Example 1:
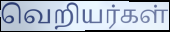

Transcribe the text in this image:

வெறியர்கள்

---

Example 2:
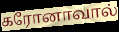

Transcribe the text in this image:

கரோனாவால்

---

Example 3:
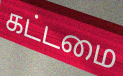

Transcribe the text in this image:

கட்டமை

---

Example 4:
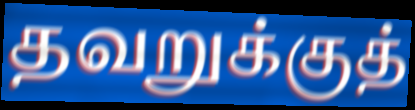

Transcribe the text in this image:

தவறுக்குத்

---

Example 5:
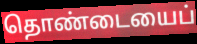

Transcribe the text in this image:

தொண்டையைப்